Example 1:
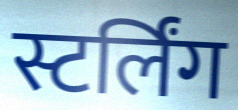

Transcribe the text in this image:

स्टर्लिंग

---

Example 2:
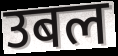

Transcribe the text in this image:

उबल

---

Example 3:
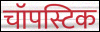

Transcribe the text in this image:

चॉपस्टिक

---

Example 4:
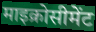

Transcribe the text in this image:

माइक्रोसीमेंट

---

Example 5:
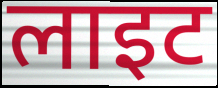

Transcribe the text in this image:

लाइट